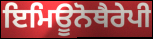
ਇਮਿਊਨੋਥੈਰੇਪੀ